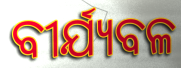
ବୀର୍ଯ୍ୟବଳ